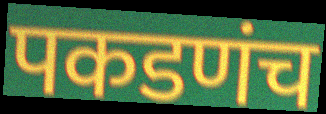
पकडणंच